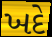
ખદે